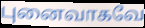
புனைவாகவே